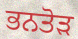
ਭਨਤੋੜ